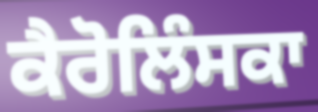
ਕੈਰੋਲਿੰਸਕਾ